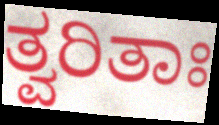
ತ್ವರಿತಾಃ